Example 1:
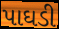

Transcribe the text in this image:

પાઘડી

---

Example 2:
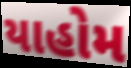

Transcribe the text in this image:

યાહોમ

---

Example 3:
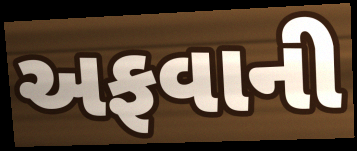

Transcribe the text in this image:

અફવાની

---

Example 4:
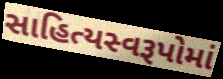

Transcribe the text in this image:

સાહિત્યસ્વરૂપોમાં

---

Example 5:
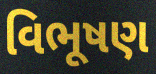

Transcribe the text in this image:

વિભૂષણ